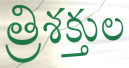
త్రిశక్తుల